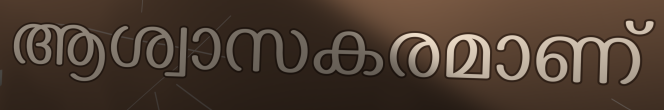
ആശ്വാസകരമാണ്